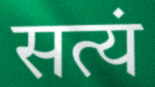
सत्यं